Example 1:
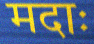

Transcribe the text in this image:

मदाः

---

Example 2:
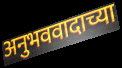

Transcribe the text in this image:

अनुभववादाच्या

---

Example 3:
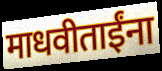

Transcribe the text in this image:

माधवीताईंना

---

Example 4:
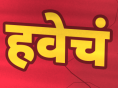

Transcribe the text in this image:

हवेचं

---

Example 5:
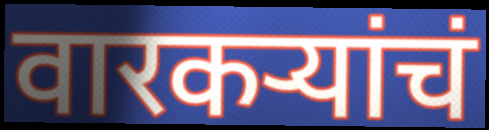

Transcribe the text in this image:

वारकऱ्यांचं